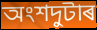
অংশদুটাৰ